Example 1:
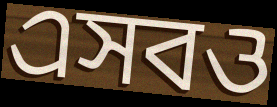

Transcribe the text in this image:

এসবও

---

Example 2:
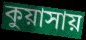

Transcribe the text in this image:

কুয়াসায়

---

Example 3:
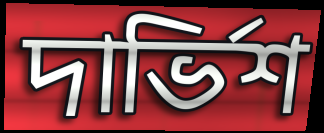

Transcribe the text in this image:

দার্ভিশ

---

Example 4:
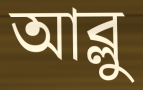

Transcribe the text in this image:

আব্লু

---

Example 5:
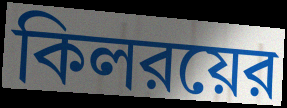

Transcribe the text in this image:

কিলরয়ের